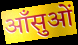
आँसुओं